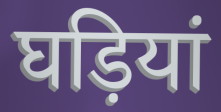
घड़ियां